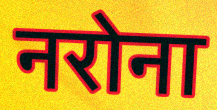
नरोना